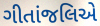
ગીતાંજલિએ